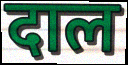
दाल